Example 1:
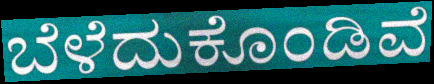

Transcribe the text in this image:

ಬೆಳೆದುಕೊಂಡಿವೆ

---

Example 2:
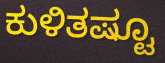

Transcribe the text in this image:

ಕುಳಿತಷ್ಟೂ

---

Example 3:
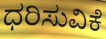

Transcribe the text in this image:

ಧರಿಸುವಿಕೆ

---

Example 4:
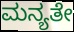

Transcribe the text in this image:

ಮನ್ಯತೇ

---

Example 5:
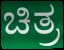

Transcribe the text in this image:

ಚಿತ್ರ